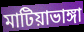
মাটিয়াভাঙ্গা